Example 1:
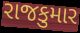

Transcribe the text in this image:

રાજકુમાર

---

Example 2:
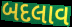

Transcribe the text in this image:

બદલાવ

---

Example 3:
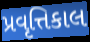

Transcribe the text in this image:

પ્રવૃત્તિકાલ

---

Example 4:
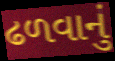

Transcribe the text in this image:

ઢળવાનું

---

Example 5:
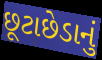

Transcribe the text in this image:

છૂટાછેડાનું